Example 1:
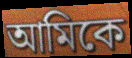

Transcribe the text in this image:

আমিকে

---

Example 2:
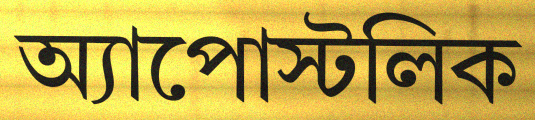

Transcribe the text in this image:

অ্যাপোস্টলিক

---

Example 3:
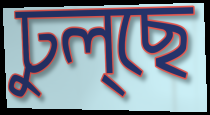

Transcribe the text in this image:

ঢুল্‌ছে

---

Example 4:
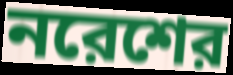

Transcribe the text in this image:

নরেশের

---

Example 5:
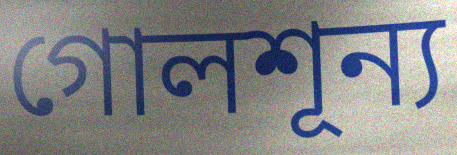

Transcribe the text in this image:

গোলশূন্য